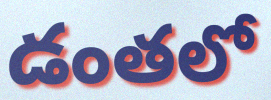
డంతలో